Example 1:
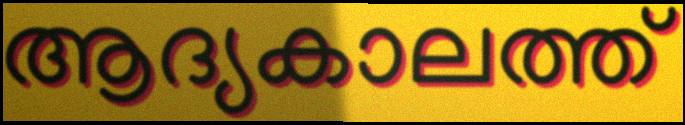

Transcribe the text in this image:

ആദ്യകാലത്ത്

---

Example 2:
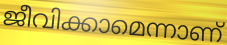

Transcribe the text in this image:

ജീവിക്കാമെന്നാണ്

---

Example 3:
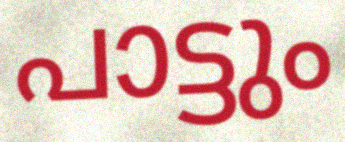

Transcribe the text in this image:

പാട്ടും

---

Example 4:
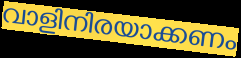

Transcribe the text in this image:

വാളിനിരയാക്കണം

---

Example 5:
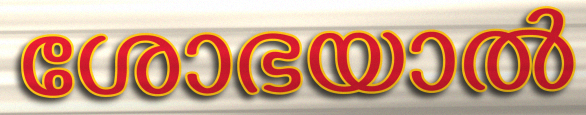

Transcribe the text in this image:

ശോഭയാൽ